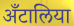
अँटालिया